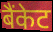
बैंकेट